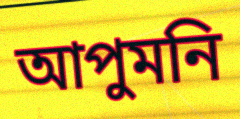
আপুমনি